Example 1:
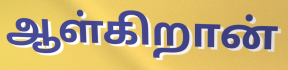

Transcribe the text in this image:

ஆள்கிறான்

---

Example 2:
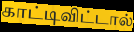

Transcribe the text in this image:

காட்டிவிட்டால்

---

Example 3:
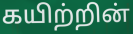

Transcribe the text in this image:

கயிற்றின்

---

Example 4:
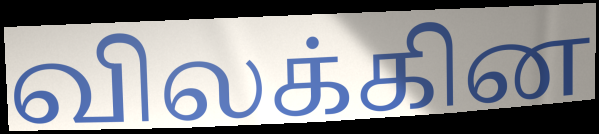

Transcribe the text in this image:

விலக்கின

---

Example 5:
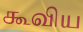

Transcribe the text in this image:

கூவிய